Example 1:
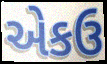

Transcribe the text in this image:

એકઉ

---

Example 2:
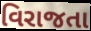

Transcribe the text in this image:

વિરાજતા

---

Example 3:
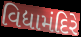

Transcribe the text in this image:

વિદ્યામંદિરે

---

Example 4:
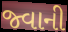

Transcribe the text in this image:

જ્વાની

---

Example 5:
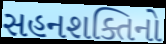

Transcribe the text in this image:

સહનશક્તિનો